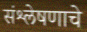
संश्लेषणाचे